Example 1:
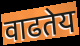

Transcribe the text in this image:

वाढतेय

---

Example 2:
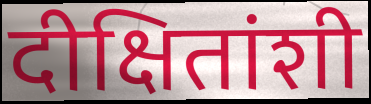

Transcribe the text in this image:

दीक्षितांशी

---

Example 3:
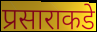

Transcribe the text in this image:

प्रसाराकडे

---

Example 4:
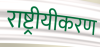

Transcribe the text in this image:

राष्ट्रीयीकरण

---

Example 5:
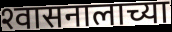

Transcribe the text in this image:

श्वासनालाच्या